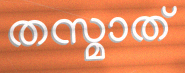
തസ്മാത്